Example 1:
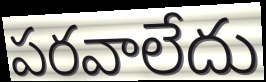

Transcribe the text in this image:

పరవాలేదు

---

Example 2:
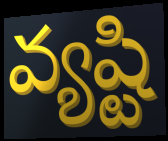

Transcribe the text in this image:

వ్యష్టి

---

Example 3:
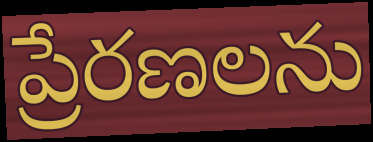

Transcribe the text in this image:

ప్రేరణలను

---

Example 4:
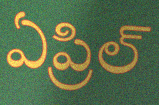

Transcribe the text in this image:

ఏప్రిల్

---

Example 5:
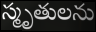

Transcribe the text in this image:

స్మృతులను